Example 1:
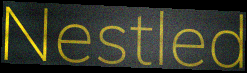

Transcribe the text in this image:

Nestled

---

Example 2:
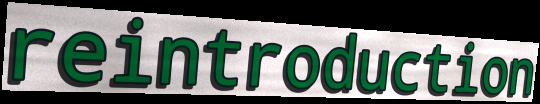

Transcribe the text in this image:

reintroduction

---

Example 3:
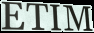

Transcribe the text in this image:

ETIM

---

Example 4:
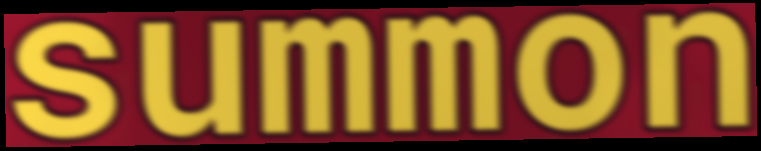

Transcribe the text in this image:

summon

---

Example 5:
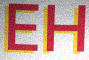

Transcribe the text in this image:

EH